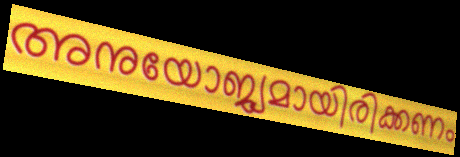
അനുയോജ്യമായിരിക്കണം